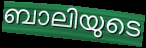
ബാലിയുടെ